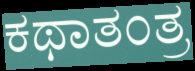
ಕಥಾತಂತ್ರ